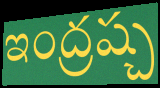
ఇంద్రష్చ